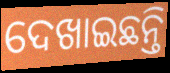
ଦେଖାଇଛନ୍ତି